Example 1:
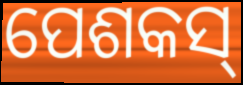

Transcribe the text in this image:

ପେଶକସ୍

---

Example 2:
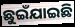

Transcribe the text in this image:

ଛୁଇଁଯାଇଛି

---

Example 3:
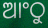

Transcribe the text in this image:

ଆଂଠୁ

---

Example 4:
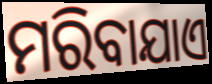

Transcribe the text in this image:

ମରିବାଯାଏ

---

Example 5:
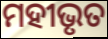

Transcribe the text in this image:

ମହୀଭୃତ